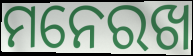
ମନେରଖ